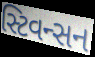
સ્ટિવન્સન